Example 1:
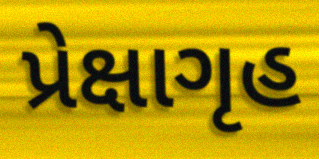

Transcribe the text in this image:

પ્રેક્ષાગૃહ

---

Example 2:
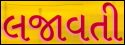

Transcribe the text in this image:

લજાવતી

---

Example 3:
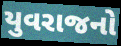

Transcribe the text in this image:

યુવરાજનો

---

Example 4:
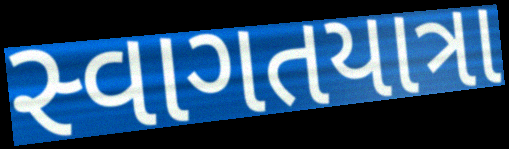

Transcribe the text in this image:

સ્વાગતયાત્રા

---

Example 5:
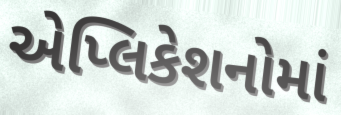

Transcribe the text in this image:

એપ્લિકેશનોમાં